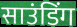
साउंडिंग